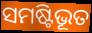
ସମଷ୍ଟିଭୂତ